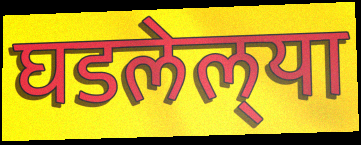
घडलेल्या